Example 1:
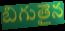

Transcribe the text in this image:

బిగుతైన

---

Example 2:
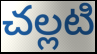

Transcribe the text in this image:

చల్లటి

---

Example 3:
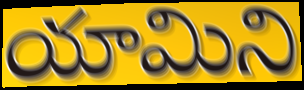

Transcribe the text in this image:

యామిని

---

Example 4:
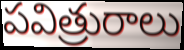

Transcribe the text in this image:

పవిత్రురాలు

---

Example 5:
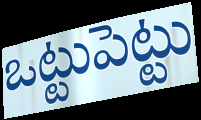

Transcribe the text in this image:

ఒట్టుపెట్టు